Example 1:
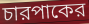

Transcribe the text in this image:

চারপাকের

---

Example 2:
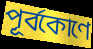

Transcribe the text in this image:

পূর্বকোণে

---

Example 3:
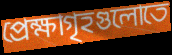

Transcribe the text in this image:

প্রেক্ষাগৃহগুলোতে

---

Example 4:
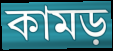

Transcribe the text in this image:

কামড়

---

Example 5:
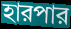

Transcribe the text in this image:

হারপার